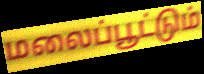
மலைப்பூட்டும்